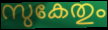
സുകേതും